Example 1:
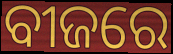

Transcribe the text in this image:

ବୀଜରେ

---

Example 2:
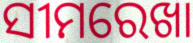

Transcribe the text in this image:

ସୀମରେଖା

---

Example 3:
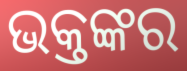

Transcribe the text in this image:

ଭକ୍ତଙ୍କର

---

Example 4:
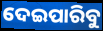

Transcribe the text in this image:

ଦେଇପାରିବୁ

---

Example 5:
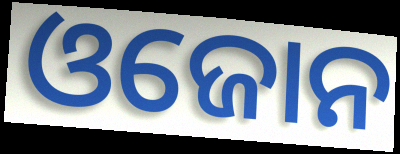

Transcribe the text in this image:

ଓଜୋନ